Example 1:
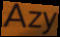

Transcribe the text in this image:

Azy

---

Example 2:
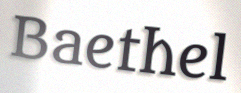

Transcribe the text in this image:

Baethel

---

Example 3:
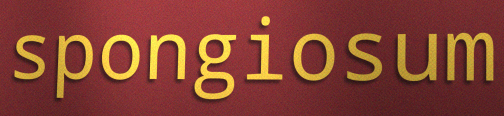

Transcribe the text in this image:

spongiosum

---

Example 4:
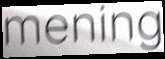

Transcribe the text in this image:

mening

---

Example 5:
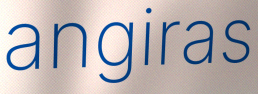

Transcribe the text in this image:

angiras